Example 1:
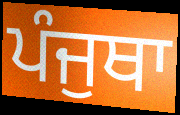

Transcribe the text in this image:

ਪੰਜੁਥਾ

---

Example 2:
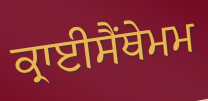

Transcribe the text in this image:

ਕ੍ਰਾਈਸੈਂਥੇਮਮ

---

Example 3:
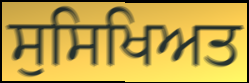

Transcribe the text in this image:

ਸੁਸਿਖਿਅਤ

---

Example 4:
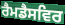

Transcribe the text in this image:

ਰੈਮਡੈਸਵਿਰ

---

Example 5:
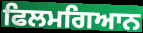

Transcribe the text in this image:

ਫਿਲਮਗਿਆਨ